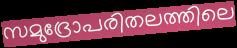
സമുദ്രോപരിതലത്തിലെ